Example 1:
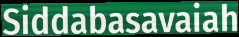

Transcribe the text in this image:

Siddabasavaiah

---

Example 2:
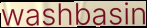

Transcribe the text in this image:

washbasin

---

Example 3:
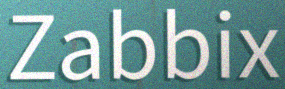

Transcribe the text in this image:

Zabbix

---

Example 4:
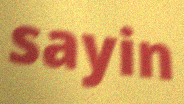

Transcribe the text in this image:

sayin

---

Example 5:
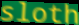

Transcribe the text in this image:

sloth